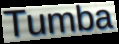
Tumba